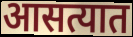
आसत्यात